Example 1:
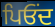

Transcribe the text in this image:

ਪਿਓਂਦ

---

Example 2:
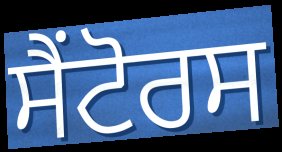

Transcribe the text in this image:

ਸੈਂਟੋਰਸ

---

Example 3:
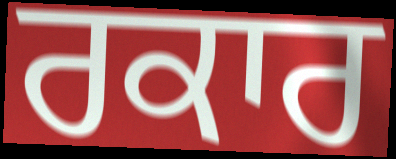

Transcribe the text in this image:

ਰਕਾਰ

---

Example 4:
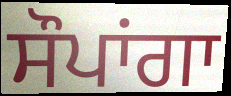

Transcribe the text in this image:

ਸੌਪਾਂਗਾ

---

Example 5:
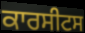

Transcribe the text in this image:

ਕਾਰਸੀਟਸ